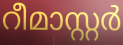
റീമാസ്റ്റർ